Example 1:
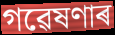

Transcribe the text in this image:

গৱেষণাৰ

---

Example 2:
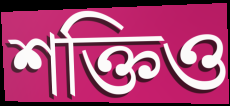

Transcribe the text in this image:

শক্তিও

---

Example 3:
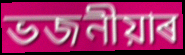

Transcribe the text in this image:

ভজনীয়াৰ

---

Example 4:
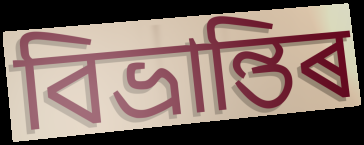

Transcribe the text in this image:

বিভ্ৰান্তিৰ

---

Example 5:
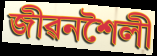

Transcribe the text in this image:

জীৱনশৈলী